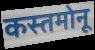
कस्तमोनू